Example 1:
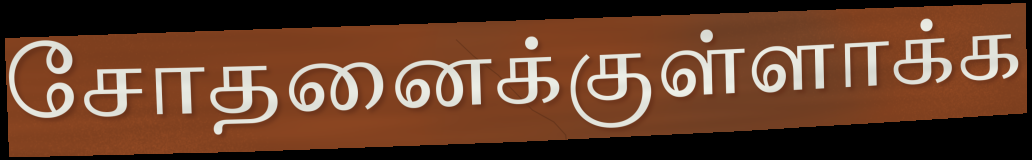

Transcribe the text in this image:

சோதனைக்குள்ளாக்க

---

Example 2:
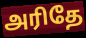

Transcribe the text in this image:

அரிதே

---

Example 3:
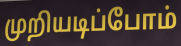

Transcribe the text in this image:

முறியடிப்போம்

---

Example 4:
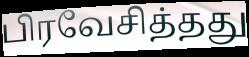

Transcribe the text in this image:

பிரவேசித்தது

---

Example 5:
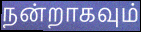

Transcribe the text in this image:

நன்றாகவும்